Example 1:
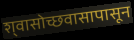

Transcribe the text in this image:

श्वासोच्छवासापासून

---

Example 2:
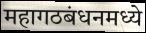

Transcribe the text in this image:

महागठबंधनमध्ये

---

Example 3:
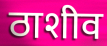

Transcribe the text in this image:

ठाशीव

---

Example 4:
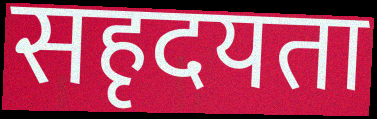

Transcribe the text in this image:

सहृदयता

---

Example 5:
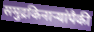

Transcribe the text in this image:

समुद्रकिनाऱ्यांपैकी